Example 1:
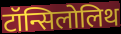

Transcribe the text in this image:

टॉन्सिलोलिथ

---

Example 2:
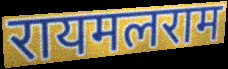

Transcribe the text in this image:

रायमलराम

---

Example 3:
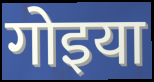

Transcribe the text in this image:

गोइया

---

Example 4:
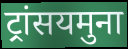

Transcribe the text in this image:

ट्रांसयमुना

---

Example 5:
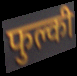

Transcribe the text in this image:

फुल्की